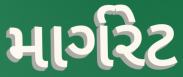
માર્ગરેટ